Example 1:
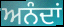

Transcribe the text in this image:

ਅਨੰਦਾਂ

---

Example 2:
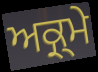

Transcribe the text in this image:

ਅਕ੍ਰ੍ਮੇ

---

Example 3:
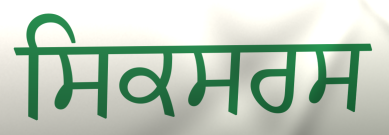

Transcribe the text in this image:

ਸਿਕਸਰਸ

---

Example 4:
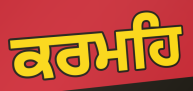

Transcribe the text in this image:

ਕਰਮਹਿ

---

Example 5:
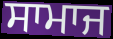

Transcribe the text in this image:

ਸਾਮਾਜ